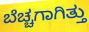
ಬೆಚ್ಚಗಾಗಿತ್ತು